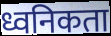
ध्वनिकता